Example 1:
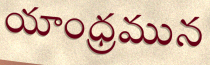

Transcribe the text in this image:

యాంధ్రమున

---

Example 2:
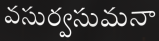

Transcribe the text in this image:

వసుర్వసుమనా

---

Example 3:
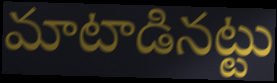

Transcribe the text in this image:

మాటాడినట్టు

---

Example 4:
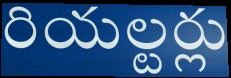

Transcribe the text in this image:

రియల్టర్లు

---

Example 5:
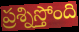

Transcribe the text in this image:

ప్రశ్నిస్తోంది